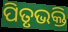
ପିତୃଭକ୍ତି